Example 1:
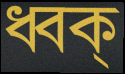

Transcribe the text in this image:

ধ্বক্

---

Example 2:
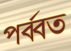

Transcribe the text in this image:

পর্ব্বত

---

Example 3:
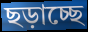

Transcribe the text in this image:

ছড়াচ্ছে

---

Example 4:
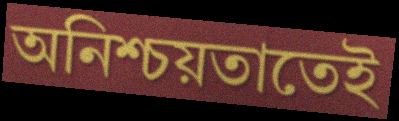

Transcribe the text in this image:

অনিশ্চয়তাতেই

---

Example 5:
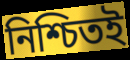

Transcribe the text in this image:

নিশ্চিতই